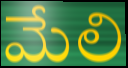
మేలి